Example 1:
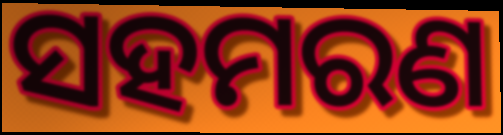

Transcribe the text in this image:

ସହମରଣ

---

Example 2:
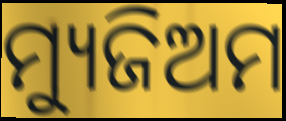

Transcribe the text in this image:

ମ୍ଯୁଜିଅମ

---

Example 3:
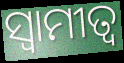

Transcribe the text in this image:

ସ୍ଵାମୀତ୍ବ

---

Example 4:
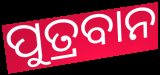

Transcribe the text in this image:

ପୁତ୍ରବାନ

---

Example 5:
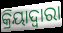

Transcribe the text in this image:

କ୍ରିୟାଦ୍ଵାରା